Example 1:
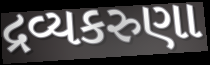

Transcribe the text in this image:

દ્રવ્યકરુણા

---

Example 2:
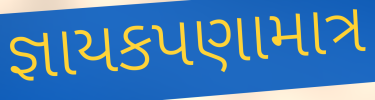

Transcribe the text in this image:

જ્ઞાયકપણામાત્ર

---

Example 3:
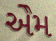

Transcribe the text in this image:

એેમ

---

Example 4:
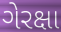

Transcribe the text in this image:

ગેરક્ષા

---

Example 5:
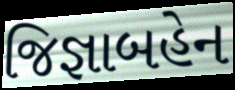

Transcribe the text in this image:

જિજ્ઞાબહેન